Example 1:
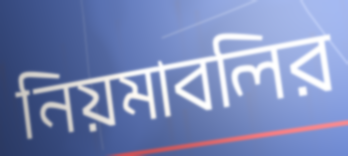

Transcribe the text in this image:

নিয়মাবলির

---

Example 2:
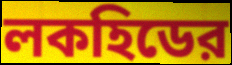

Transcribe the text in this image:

লকহিডের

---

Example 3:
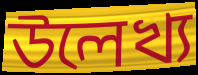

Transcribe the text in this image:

উলেখ্য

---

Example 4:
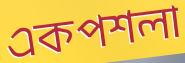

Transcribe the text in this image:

একপশলা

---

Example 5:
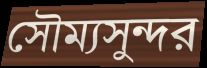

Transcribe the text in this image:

সৌম্যসুন্দর